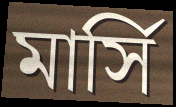
মার্সি